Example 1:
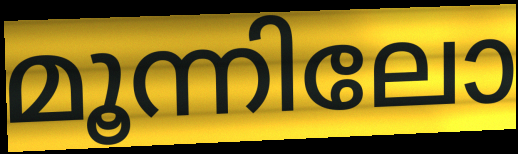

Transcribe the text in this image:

മൂന്നിലോ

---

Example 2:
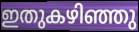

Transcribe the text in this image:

ഇതുകഴിഞ്ഞു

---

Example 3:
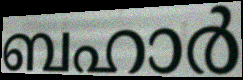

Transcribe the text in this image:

ബഹാർ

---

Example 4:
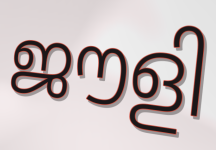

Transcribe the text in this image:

ജൗളി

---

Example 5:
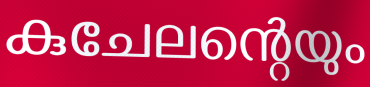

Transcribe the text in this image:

കുചേലന്റെയും